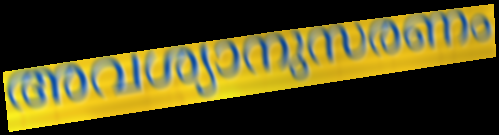
അവശ്യാനുസരണം